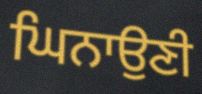
ਘਿਨਾਉਣੀ